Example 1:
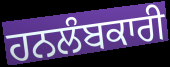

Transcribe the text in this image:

ਹਨਲੰਬਕਾਰੀ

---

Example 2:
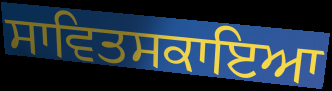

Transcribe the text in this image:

ਸਾਵਿਤਸਕਾਇਆ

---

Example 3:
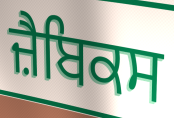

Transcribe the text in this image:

ਜ਼ੈਬਿਕਸ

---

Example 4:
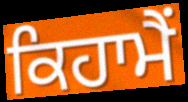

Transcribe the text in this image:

ਕਿਹਾਮੈਂ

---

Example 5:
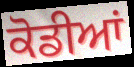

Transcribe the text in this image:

ਕੋਡੀਆਂ